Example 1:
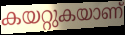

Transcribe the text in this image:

കയറ്റുകയാണ്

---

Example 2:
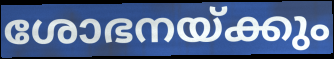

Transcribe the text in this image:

ശോഭനയ്ക്കും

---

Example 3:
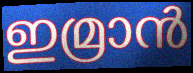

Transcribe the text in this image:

ഇമ്രാൻ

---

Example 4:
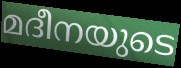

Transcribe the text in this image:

മദീനയുടെ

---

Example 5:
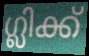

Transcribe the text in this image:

ഗ്ലിക്ക്